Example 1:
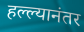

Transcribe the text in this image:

हल्ल्यानंतर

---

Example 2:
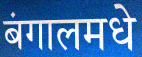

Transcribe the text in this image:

बंगालमधे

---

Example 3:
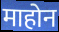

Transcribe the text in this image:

माहोन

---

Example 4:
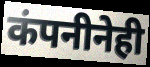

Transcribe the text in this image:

कंपनीनेही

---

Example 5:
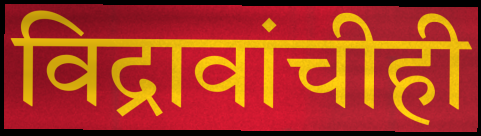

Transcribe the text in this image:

विद्रावांचीही